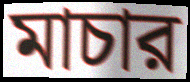
মাচার